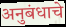
अनुबंधाचे